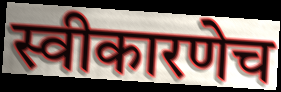
स्वीकारणेच